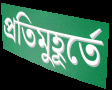
প্রতিমুহূর্তে